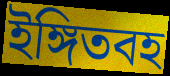
ইঙ্গিতবহ